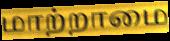
மாற்றாமை